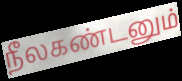
நீலகண்டனும்